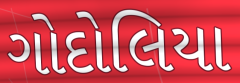
ગોદોલિયા